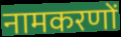
नामकरणों